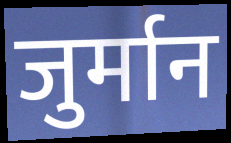
जुर्मान